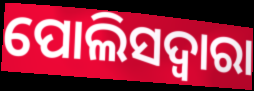
ପୋଲିସଦ୍ୱାରା